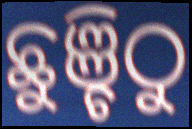
ଛୁଞ୍ଚିଠୁ